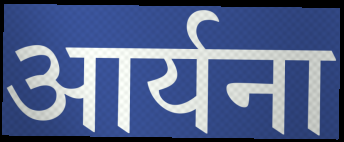
आर्यना